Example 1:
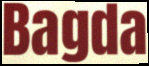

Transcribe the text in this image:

Bagda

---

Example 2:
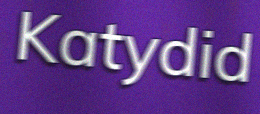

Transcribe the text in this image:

Katydid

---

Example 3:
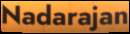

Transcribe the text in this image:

Nadarajan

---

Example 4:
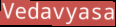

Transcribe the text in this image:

Vedavyasa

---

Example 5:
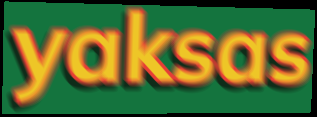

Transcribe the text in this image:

yaksas